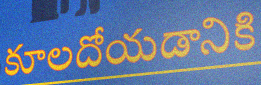
కూలదోయడానికి